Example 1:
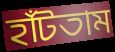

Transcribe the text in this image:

হাঁটতাম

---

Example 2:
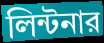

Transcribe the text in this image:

লিন্টনার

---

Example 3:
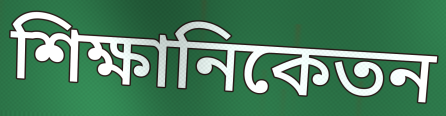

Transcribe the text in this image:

শিক্ষানিকেতন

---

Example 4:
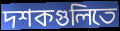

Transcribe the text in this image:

দশকগুলিতে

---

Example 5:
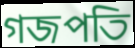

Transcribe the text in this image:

গজপতি